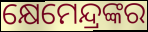
କ୍ଷେମେନ୍ଦ୍ରଙ୍କର